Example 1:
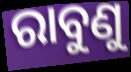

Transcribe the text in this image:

ରାବୁଣୁ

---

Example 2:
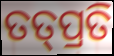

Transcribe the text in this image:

ତତ୍‌ପ୍ରତି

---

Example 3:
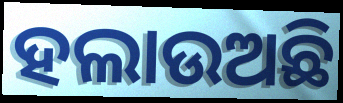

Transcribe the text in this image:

ହଲାଉଅଛି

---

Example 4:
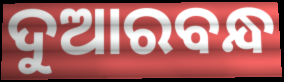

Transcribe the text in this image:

ଦୁଆରବନ୍ଧ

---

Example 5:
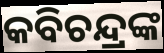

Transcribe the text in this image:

କବିଚନ୍ଦ୍ରଙ୍କ